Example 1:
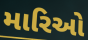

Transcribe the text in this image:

મારિઓ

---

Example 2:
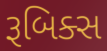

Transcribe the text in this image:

રૂબિક્સ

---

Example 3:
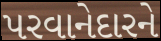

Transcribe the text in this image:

પરવાનેદારને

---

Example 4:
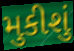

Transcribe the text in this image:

મુકીશું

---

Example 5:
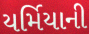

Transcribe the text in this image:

યર્મિયાની